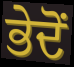
ਭੇਦੋਂ